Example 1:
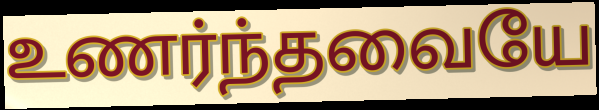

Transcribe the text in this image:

உணர்ந்தவையே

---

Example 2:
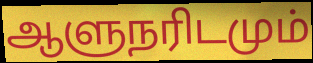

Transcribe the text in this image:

ஆளுநரிடமும்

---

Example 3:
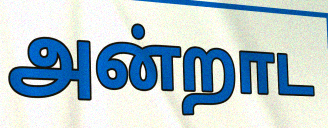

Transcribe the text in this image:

அன்றாட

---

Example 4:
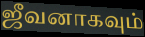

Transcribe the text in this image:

ஜீவனாகவும்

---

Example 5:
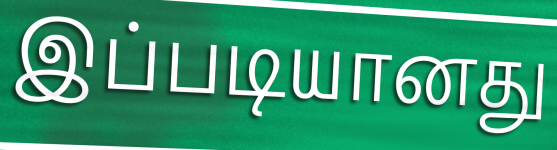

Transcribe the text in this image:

இப்படியானது